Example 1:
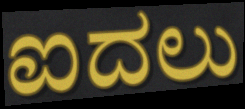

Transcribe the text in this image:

ಐದಲು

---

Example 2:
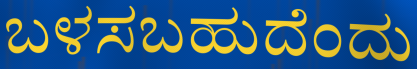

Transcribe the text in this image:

ಬಳಸಬಹುದೆಂದು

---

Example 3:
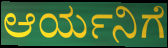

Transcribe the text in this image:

ಆರ್ಯನಿಗೆ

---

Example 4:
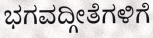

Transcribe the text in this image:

ಭಗವದ್ಗೀತೆಗಳಿಗೆ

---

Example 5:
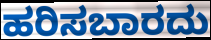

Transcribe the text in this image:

ಹರಿಸಬಾರದು